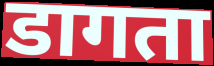
डागता